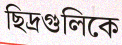
ছিদ্রগুলিকে